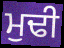
ਮੁਢੀ